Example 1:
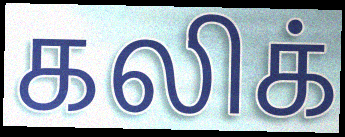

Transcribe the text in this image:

கலிக்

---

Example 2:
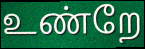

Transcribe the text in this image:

உண்றே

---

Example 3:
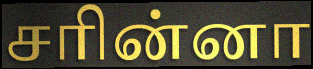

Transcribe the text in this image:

சரின்னா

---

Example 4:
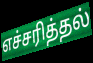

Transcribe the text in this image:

எச்சரித்தல்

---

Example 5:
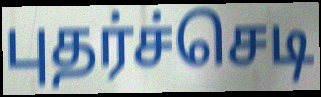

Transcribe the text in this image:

புதர்ச்செடி